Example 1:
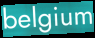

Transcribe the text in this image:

belgium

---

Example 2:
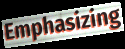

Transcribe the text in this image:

Emphasizing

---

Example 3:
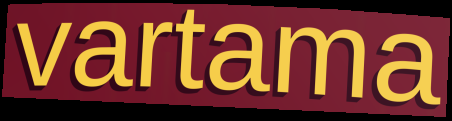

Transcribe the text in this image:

vartama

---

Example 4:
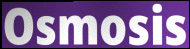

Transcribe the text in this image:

Osmosis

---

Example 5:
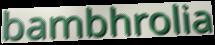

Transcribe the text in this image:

bambhrolia